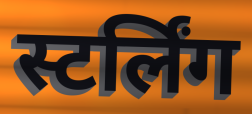
स्टर्लिंग